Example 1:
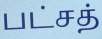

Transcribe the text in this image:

பட்சத்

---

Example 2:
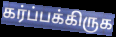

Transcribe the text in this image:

கர்ப்பக்கிருக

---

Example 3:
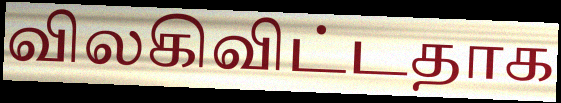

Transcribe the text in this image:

விலகிவிட்டதாக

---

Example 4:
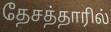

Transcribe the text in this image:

தேசத்தாரில்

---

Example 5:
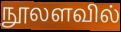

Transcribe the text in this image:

நூலளவில்